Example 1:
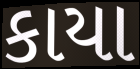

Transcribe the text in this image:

કાયા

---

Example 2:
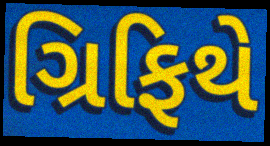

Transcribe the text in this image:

ગ્રિફિથે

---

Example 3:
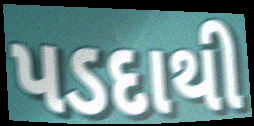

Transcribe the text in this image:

પડદાથી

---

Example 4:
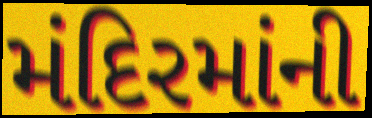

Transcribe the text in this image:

મંદિરમાંની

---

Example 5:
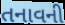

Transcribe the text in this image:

તનાવની